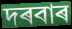
দৰবাৰ